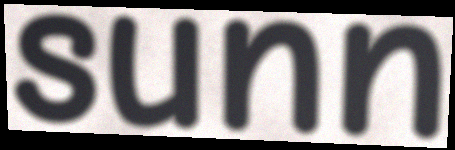
sunn